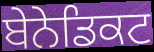
ਬੇਨੇਡਿਕਟ